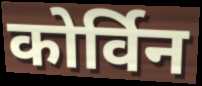
कोर्विन